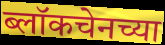
ब्लॉकचेनच्या